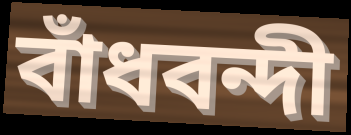
বাঁধবন্দী